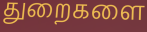
துறைகளை